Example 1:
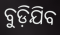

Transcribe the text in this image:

ବୁଡ଼ିଯିବ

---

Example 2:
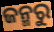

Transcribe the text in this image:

ଜନ୍ମରୁ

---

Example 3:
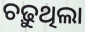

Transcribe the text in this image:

ଚଢ଼ୁଥିଲା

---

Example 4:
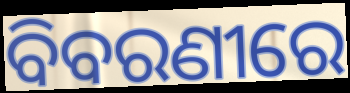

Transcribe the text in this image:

ବିବରଣୀରେ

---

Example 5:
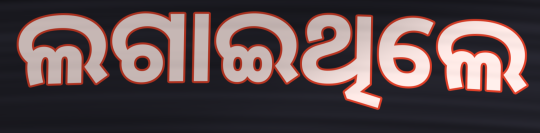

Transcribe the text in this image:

ଲଗାଇଥିଲେ